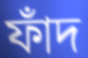
ফাঁদ